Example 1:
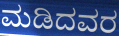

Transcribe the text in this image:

ಮಡಿದವರ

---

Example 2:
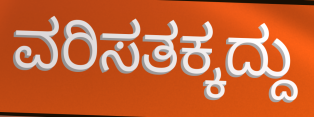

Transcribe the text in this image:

ವರಿಸತಕ್ಕದ್ದು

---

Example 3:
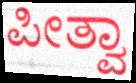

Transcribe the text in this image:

ಪೀತ್ವಾ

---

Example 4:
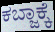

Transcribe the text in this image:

ಕಬ್ಜಾಕ್ಕೆ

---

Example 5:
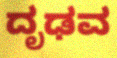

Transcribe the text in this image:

ದೃಢವ